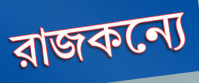
রাজকন্যে